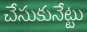
చేసుకునేట్టు